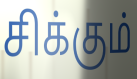
சிக்கும்